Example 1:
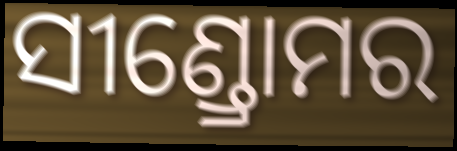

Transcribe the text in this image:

ସୀଣ୍ଡ୍ରୋମର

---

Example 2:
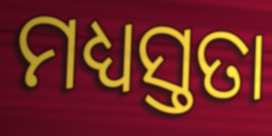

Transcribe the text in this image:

ମଧ୍ୟସ୍ତତା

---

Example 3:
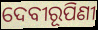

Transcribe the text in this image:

ଦେବୀରୂପିଣୀ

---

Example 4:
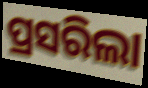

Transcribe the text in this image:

ପ୍ରସରିଲା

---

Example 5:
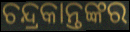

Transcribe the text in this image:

ଚନ୍ଦ୍ରକାନ୍ତଙ୍କର